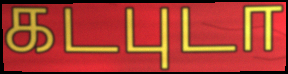
கடபுடா